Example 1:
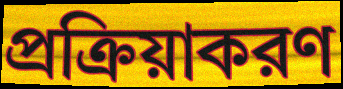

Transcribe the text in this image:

প্রক্রিয়াকরণ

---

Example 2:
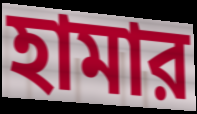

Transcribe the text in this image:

হামার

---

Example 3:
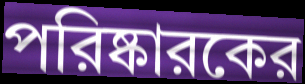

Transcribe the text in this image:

পরিষ্কারকের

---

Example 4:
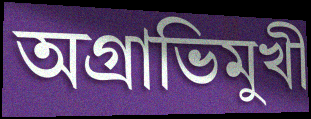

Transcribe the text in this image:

অগ্রাভিমুখী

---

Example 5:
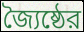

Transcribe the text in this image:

জ্যৈষ্ঠের